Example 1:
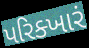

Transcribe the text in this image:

પરિક્ખારં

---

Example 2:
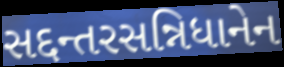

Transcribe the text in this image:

સદ્દન્તરસન્નિધાનેન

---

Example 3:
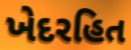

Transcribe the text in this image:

ખેદરહિત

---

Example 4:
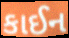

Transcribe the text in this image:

કાઈન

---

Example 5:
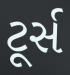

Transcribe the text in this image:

ટૂર્સ